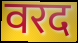
वरद